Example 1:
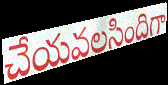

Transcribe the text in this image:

చేయవలసిందిగా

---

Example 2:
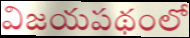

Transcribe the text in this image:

విజయపథంలో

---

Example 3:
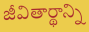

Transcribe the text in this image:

జీవితార్థాన్ని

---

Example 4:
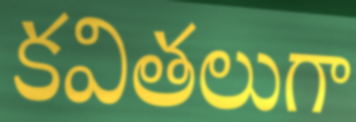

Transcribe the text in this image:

కవితలుగా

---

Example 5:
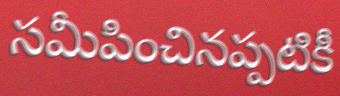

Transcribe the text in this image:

సమీపించినప్పటికీ